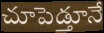
చూపెడ్తూనే